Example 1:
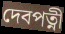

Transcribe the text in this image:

দেবপত্নী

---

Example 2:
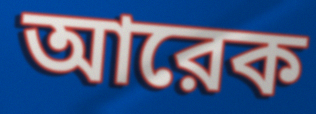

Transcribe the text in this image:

আরেক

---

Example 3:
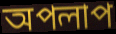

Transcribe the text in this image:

অপলাপ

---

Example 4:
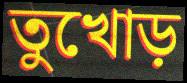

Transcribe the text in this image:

তুখোড়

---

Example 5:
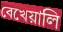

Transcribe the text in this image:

বেখেয়ালি